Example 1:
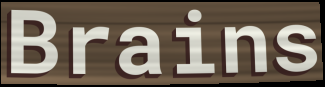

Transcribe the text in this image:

Brains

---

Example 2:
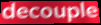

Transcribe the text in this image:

decouple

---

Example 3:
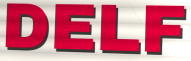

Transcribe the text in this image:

DELF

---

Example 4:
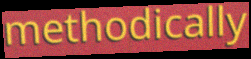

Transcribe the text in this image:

methodically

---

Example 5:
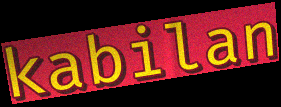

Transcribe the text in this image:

kabilan